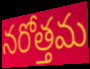
నరోత్తమ